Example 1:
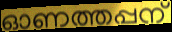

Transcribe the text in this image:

ഓണത്തപ്പന്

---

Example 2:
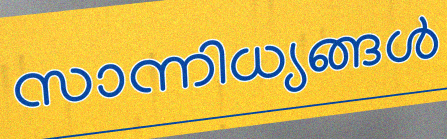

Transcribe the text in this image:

സാന്നിധ്യങ്ങൾ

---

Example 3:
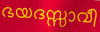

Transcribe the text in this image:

ഭയദസ്സാവീ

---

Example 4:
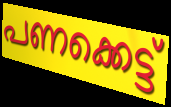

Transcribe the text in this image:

പണക്കെട്ട്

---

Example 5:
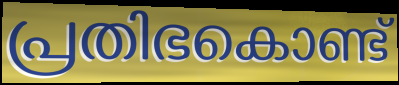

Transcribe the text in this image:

പ്രതിഭകൊണ്ട്